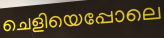
ചെളിയെപ്പോലെ